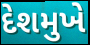
દેશમુખે